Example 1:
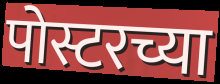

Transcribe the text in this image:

पोस्टरच्या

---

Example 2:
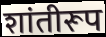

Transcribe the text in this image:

शांतीरूप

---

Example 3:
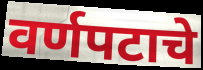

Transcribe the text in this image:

वर्णपटाचे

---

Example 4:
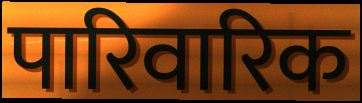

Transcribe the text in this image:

पारिवारिक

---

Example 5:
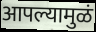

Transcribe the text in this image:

आपल्यामुळं